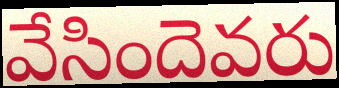
వేసిందెవరు